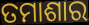
ତମାଶାର